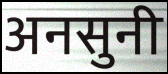
अनसुनी